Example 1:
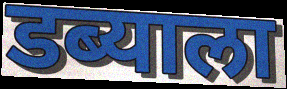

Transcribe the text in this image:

डब्याला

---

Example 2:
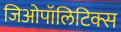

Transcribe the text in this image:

जिओपॉलिटिक्स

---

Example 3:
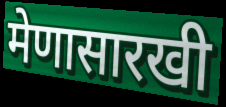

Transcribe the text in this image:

मेणासारखी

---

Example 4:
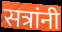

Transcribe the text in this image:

सत्रांनी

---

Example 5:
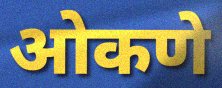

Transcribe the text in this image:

ओकणे